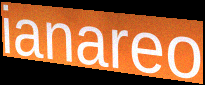
ianareo